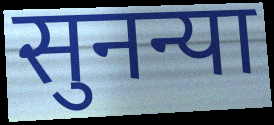
सुनन्या